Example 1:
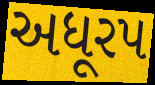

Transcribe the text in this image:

અધૂરપ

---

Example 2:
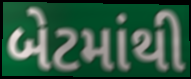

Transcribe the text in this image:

બેટમાંથી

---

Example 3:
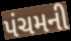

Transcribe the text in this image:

પંચમની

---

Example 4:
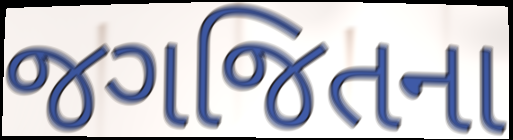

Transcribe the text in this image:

જગજિતના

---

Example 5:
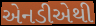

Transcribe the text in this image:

એનડીએથી